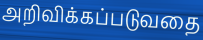
அறிவிக்கப்படுவதை